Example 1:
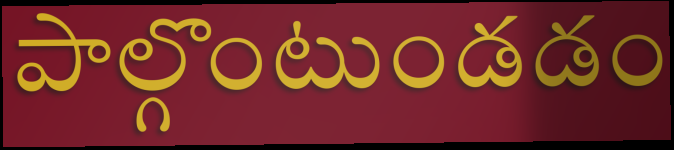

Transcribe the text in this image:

పాల్గొంటుండడం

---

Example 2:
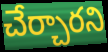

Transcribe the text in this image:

చేర్చారని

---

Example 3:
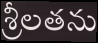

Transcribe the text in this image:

శ్రీలతను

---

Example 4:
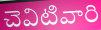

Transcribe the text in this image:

చెవిటివారి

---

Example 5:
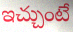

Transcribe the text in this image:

ఇచ్చుంటే